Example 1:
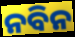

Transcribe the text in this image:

ନବିନ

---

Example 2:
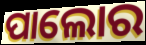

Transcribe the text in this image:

ପାଲୋର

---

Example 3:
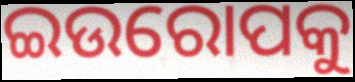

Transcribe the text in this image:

ଇଉରୋପକୁ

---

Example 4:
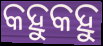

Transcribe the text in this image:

କହୁକହୁ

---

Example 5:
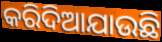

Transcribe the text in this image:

କରିଦିଆଯାଉଛି